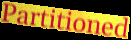
Partitioned